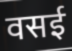
वसई